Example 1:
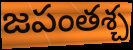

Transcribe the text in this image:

జపంతశ్చ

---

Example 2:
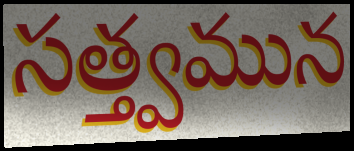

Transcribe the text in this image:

సత్త్వమున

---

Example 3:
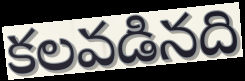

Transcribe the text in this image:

కలవడినది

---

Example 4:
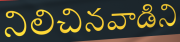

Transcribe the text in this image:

నిలిచినవాడిని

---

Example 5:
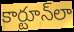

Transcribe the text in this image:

కార్టూన్‌లా